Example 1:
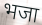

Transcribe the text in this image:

भजा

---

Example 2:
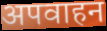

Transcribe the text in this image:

अपवाहन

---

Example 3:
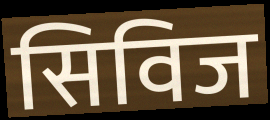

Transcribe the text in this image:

सिविज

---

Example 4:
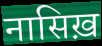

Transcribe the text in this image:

नासिख़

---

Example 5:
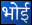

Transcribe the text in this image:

भोई